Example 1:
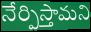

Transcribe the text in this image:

నేర్పిస్తామని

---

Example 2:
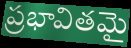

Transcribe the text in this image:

ప్రభావితమై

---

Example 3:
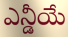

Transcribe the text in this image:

ఎన్డీయే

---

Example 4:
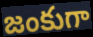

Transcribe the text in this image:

జంకుగా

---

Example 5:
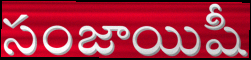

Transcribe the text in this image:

సంజాయిషీ